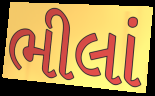
ભીલાં